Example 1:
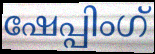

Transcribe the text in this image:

ഷേപ്പിംഗ്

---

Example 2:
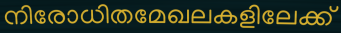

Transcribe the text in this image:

നിരോധിതമേഖലകളിലേക്ക്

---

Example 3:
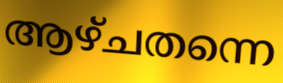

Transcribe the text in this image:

ആഴ്ചതന്നെ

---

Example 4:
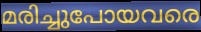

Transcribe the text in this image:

മരിച്ചുപോയവരെ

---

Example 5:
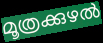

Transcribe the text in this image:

മൂത്രക്കുഴൽ